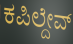
ಕಪಿಲ್ದೇವ್